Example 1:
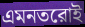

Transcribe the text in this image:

এমনতরোই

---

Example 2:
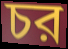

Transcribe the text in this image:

চর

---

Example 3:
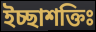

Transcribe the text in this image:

ইচ্ছাশক্তিঃ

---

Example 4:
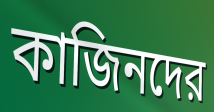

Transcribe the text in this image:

কাজিনদের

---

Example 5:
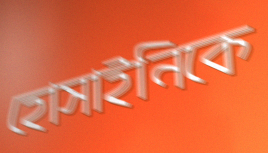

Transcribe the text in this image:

হোসাইনিকে